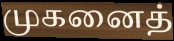
முகனைத்